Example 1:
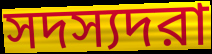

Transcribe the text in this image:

সদস্যদরা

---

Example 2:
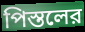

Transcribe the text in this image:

পিস্তলের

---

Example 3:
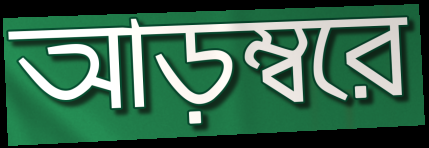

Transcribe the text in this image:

আড়ম্বরে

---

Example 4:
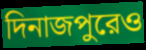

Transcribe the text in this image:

দিনাজপুরেও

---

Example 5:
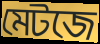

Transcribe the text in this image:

মেটজে